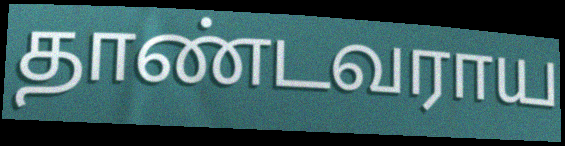
தாண்டவராய